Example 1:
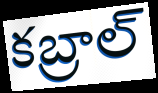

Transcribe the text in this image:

కబ్రాల్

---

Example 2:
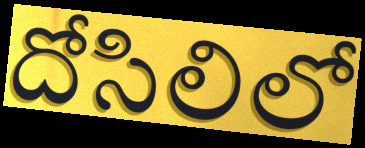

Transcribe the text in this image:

దోసిలిలో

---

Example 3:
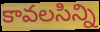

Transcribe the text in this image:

కావలసిన్ని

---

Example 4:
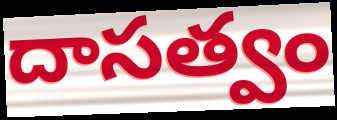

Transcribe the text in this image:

దాసత్వం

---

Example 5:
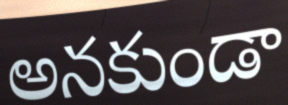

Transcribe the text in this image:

అనకుండా